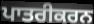
ਪਾਤਰੀਕਰਨ